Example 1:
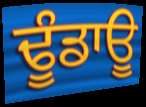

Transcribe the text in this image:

ਢੂੰਡਾਊ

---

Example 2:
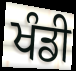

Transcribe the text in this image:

ਖੰਡੀ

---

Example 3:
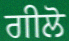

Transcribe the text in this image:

ਗੀਲੋ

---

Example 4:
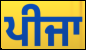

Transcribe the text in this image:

ਪੀਜਾ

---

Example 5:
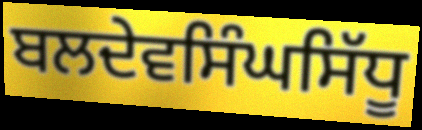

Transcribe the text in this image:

ਬਲਦੇਵਸਿੰਘਸਿੱਧੂ